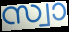
സ്വാ